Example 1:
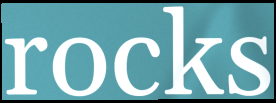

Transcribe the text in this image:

rocks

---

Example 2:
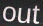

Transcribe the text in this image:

out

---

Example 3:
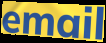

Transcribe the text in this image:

email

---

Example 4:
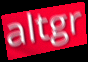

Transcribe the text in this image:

altgr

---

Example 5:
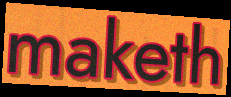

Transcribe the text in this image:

maketh